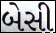
બેસી